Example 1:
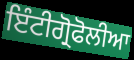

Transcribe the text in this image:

ਇੰਟੀਗ੍ਰੋਫੋਲੀਆ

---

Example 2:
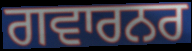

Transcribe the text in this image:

ਗਵਾਰਨਰ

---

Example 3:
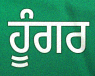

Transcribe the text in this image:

ਹੂੰਗਰ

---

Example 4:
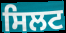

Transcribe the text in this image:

ਸਿਲਟ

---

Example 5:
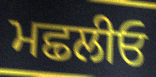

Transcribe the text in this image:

ਮਛਲੀਓ